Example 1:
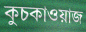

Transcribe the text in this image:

কুচকাওয়াজ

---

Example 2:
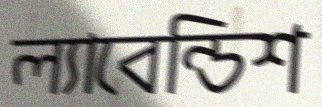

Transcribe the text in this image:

ল্যাবেন্ডিশ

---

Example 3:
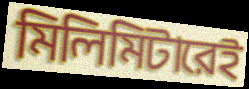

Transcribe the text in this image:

মিলিমিটারেই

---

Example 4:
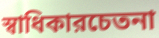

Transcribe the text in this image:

স্বাধিকারচেতনা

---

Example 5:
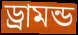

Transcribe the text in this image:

ড্রামন্ড